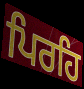
ਪਿਰਹਿ